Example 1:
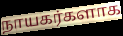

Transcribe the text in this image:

நாயகர்களாக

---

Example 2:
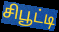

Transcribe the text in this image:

சிபூட்டி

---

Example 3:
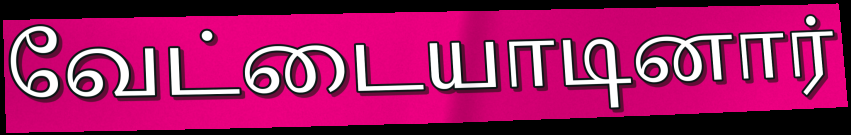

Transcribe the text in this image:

வேட்டையாடினார்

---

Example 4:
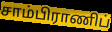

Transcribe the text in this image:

சாம்பிராணிப்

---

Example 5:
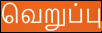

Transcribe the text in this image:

வெறுப்பு